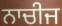
ਨਾਚੀਜ